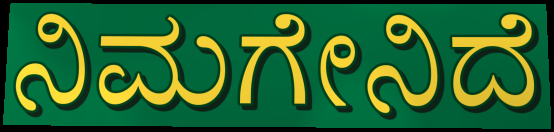
ನಿಮಗೇನಿದೆ